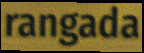
rangada